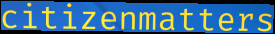
citizenmatters